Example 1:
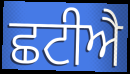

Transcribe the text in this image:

ਛਟੀਐ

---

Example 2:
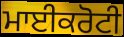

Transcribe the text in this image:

ਮਾਈਕਰੋਟੀ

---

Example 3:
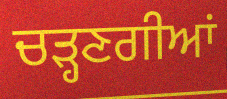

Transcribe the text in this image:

ਚੜ੍ਹਣਗੀਆਂ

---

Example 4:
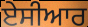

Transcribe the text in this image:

ਏਸੀਆਰ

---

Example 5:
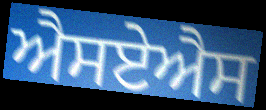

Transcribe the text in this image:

ਐਸਏਐਸ